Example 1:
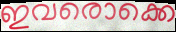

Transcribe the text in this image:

ഇവരൊക്കെ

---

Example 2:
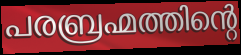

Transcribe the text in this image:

പരബ്രഹ്മത്തിന്റെ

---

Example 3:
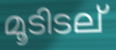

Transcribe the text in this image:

മൂടിടല്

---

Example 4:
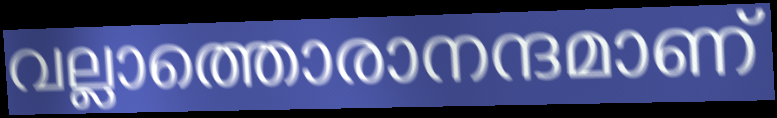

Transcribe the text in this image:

വല്ലാത്തൊരാനന്ദമാണ്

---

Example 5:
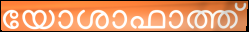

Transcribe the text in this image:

യോശാഫാത്ത്